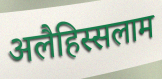
अलैहिस्सलाम